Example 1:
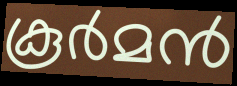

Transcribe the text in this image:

കൂർമൻ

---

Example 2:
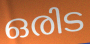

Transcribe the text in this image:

ഒരിട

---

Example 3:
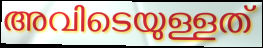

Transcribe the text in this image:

അവിടെയുള്ളത്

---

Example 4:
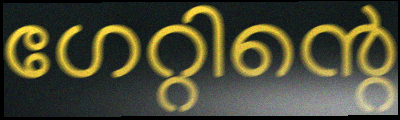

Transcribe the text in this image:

ഗേറ്റിന്റെ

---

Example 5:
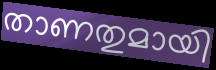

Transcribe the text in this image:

താണതുമായി